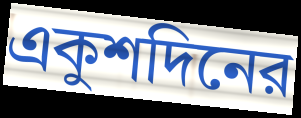
একুশদিনের